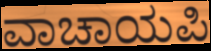
ವಾಚಾಯಪಿ